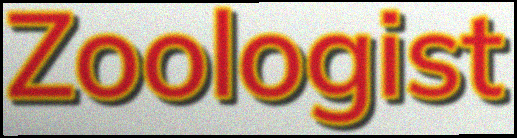
Zoologist